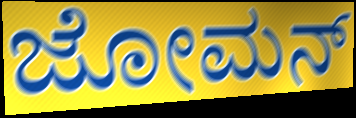
ಜೋಮನ್